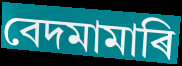
বেদমামাৰি